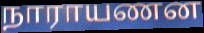
நாராயணன